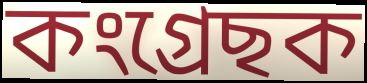
কংগ্ৰেছক